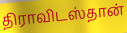
திராவிடஸ்தான்